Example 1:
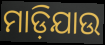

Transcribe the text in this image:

ମାଡ଼ିଯାଉ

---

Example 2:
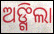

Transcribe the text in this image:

ଅଙ୍ଗିଲା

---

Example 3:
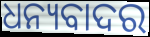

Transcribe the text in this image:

ଧନ୍ୟବାଦର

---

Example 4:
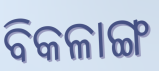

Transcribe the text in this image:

ବିକଳାଙ୍ଗ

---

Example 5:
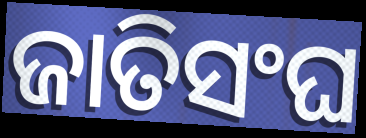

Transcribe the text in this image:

ଜାତିସଂଘ